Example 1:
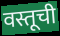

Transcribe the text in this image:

वस्तूची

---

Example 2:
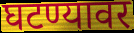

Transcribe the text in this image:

घटण्यावर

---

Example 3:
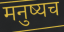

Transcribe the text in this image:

मनुष्यच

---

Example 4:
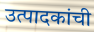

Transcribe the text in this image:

उत्पादकांची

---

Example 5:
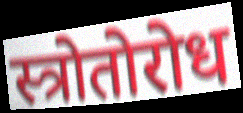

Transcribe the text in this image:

स्त्रोतोरोध